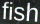
fish